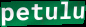
petulu